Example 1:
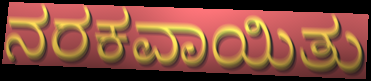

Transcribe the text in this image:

ನರಕವಾಯಿತು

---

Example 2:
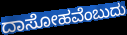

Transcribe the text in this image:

ದಾಸೋಹವೆಂಬುದು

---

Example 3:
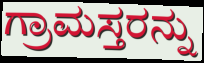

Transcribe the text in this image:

ಗ್ರಾಮಸ್ತರನ್ನು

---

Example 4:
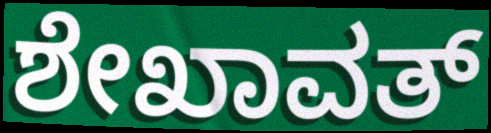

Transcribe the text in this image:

ಶೇಖಾವತ್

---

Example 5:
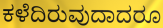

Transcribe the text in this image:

ಕಳೆದಿರುವುದಾದರೂ